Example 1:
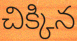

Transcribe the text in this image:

చిక్కిన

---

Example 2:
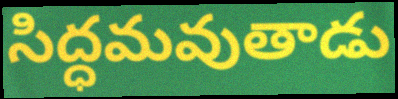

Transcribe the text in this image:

సిద్ధమవుతాడు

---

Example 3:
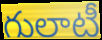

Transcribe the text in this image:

గులాటీ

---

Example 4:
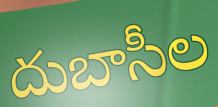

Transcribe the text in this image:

దుబాసీల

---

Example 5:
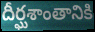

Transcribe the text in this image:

దీర్ఘశాంతానికి